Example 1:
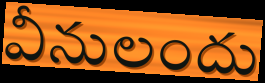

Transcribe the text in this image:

వీనులందు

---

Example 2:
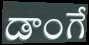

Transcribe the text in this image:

డాంగే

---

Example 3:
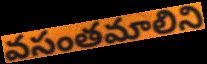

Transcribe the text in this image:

వసంతమాలిని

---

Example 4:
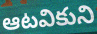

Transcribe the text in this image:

ఆటవికుని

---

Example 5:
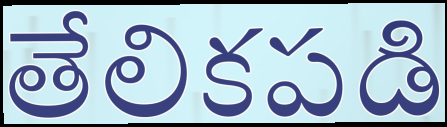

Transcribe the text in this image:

తేలికపడి